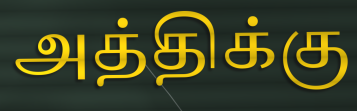
அத்திக்கு